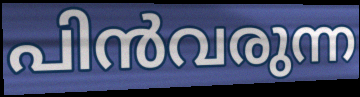
പിൻവരുന്ന